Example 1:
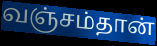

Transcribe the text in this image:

வஞ்சம்தான்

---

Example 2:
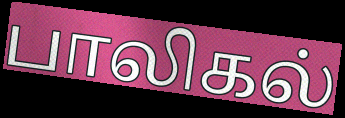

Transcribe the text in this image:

பாலிகல்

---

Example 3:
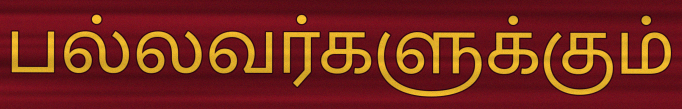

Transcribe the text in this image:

பல்லவர்களுக்கும்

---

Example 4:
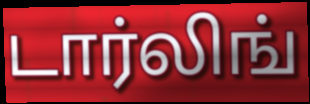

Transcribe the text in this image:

டார்லிங்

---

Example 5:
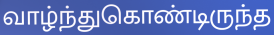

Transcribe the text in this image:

வாழ்ந்துகொண்டிருந்த